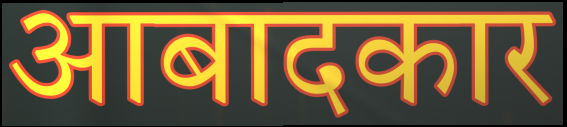
आबादकार